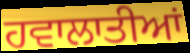
ਹਵਾਲਾਤੀਆਂ